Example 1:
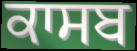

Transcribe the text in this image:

ਕਾਸਬ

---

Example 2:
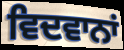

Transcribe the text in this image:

ਵਿਦਵਾਨਾਂ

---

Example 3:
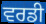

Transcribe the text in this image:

ਵਰਡੀ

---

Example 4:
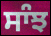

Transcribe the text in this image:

ਸਾੰਝ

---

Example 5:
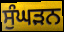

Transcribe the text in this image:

ਸੁੰਘੜਨ